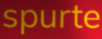
spurte